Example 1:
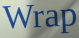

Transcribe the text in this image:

Wrap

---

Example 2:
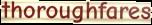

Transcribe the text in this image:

thoroughfares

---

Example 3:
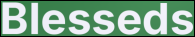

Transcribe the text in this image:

Blesseds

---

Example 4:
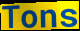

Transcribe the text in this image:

Tons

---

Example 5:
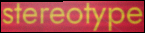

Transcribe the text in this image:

stereotype